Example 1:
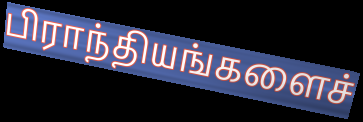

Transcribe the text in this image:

பிராந்தியங்களைச்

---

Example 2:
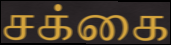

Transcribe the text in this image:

சக்கை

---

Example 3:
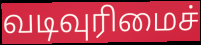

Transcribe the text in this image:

வடிவுரிமைச்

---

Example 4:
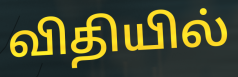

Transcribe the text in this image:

விதியில்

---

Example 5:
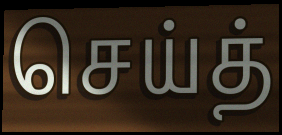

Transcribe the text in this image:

செய்த்